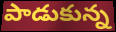
పాడుకున్న